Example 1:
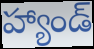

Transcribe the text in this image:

హ్యాండ్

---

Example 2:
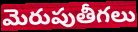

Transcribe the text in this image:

మెరుపుతీగలు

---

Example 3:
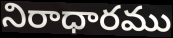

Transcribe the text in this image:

నిరాధారము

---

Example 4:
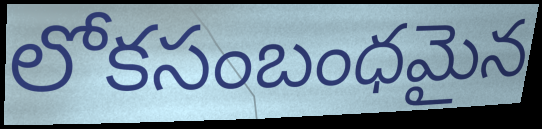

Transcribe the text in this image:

లోకసంబంధమైన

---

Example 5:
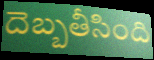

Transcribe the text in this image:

దెబ్బతీసింది